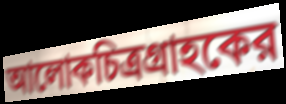
আলোকচিত্রগ্রাহকের